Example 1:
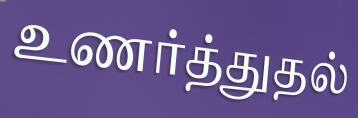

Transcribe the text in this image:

உணர்த்துதல்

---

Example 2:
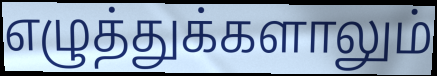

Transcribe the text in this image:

எழுத்துக்களாலும்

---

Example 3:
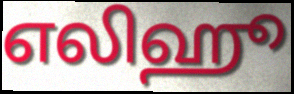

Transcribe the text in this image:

எலிஹூ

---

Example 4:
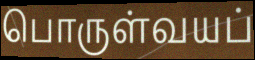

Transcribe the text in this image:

பொருள்வயப்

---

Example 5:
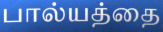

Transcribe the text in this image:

பால்யத்தை